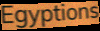
Egyptions